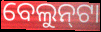
ବେଲୁନ୍‌ଟା